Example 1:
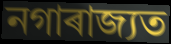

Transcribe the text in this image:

নগাৰাজ্যত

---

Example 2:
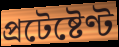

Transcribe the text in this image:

প্ৰটেষ্টেণ্ট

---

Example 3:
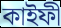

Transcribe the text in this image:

কাইফী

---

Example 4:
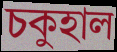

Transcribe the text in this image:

চকুহাল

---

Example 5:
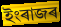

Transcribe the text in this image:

ইংৰাজৰ